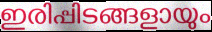
ഇരിപ്പിടങ്ങളായും